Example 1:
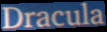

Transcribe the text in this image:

Dracula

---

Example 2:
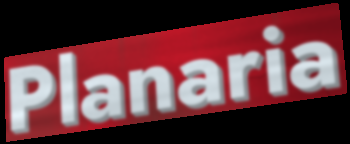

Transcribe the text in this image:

Planaria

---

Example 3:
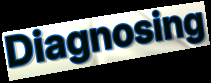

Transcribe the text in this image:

Diagnosing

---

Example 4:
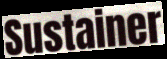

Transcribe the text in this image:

Sustainer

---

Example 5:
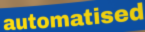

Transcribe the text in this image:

automatised